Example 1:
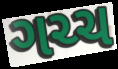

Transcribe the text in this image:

ગચ્ચ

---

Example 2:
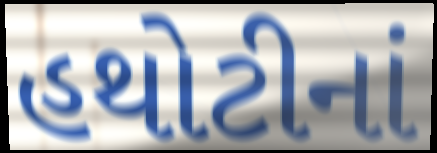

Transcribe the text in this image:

હથોટીનાં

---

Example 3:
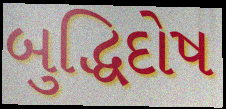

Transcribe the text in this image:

બુદ્ધિદોષ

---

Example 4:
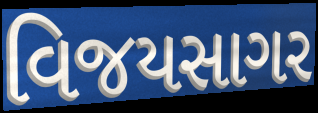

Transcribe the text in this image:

વિજયસાગર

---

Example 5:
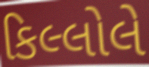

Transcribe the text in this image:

કિલ્લોલે